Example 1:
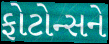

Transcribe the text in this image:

ફોટોન્સને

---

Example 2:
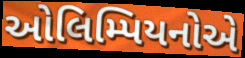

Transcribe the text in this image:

ઓલિમ્પિયનોએ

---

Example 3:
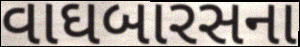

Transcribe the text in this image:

વાઘબારસના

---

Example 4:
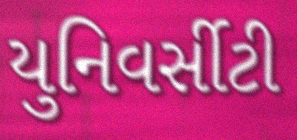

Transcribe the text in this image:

યુનિવર્સીટી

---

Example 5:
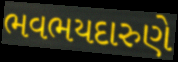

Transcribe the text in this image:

ભવભયદારુણે